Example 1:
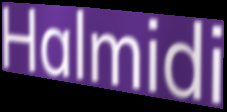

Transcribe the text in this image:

Halmidi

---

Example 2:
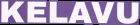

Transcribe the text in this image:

KELAVU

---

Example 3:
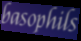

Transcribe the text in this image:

basophils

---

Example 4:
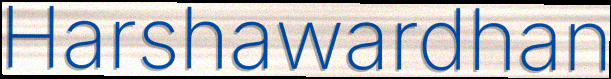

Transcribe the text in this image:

Harshawardhan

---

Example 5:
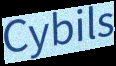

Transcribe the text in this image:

Cybils